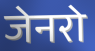
जेनरो